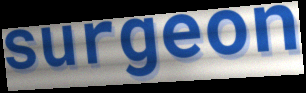
surgeon